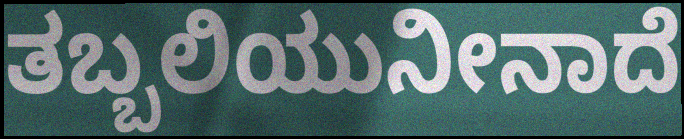
ತಬ್ಬಲಿಯುನೀನಾದೆ